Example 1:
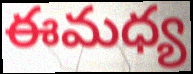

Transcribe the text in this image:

ఈమధ్య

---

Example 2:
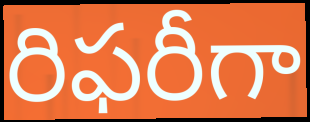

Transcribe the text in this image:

రిఫరీగా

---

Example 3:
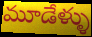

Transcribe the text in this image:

మూడేళ్ళు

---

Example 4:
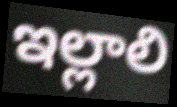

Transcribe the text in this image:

ఇల్లాలి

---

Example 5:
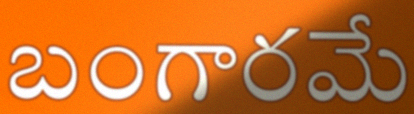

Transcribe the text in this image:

బంగారమే